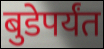
बुडेपर्यंत